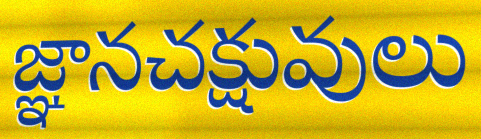
జ్ఞానచక్షువులు